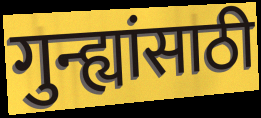
गुन्ह्यांसाठी